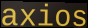
axios